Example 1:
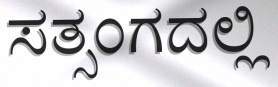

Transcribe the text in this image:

ಸತ್ಸಂಗದಲ್ಲಿ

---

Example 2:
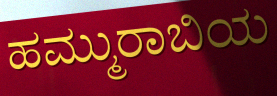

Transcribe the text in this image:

ಹಮ್ಮುರಾಬಿಯ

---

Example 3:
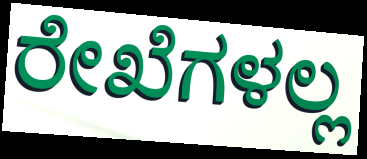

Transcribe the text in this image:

ರೇಖೆಗಳಲ್ಲ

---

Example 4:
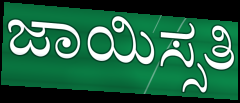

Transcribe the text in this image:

ಜಾಯಿಸ್ಸತಿ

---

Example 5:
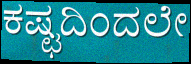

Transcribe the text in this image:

ಕಷ್ಟದಿಂದಲೇ